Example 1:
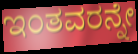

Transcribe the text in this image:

ಇಂತವರನ್ನೇ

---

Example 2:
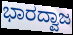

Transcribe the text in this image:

ಭಾರದ್ವಾಜ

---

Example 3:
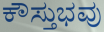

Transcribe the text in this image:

ಕೌಸ್ತುಭವು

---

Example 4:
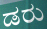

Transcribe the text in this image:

ಡರು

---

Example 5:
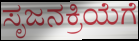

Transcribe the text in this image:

ಸೃಜನಕ್ರಿಯೆಗೆ